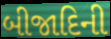
બીજાદિની